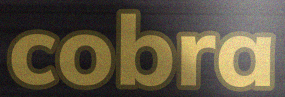
cobra